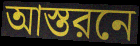
আস্তরনে